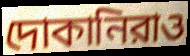
দোকানিরাও